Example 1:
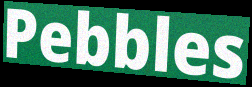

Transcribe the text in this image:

Pebbles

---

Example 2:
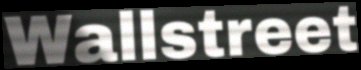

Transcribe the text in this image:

Wallstreet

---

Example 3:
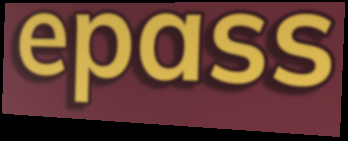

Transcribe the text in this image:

epass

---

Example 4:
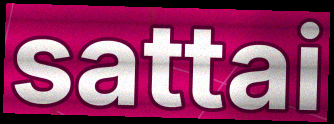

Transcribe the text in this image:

sattai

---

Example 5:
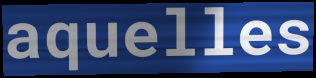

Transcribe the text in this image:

aquelles